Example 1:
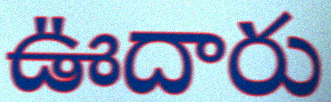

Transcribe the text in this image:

ఊదారు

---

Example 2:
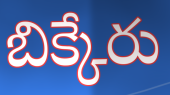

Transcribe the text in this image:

బిక్కేరు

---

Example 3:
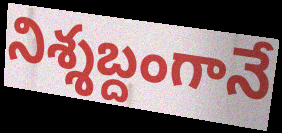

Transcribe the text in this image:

నిశ్శబ్దంగానే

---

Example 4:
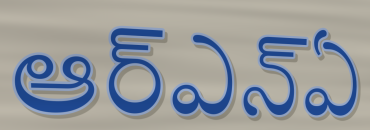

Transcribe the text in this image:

ఆర్ఎన్ఏ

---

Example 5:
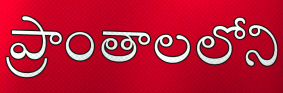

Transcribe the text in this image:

ప్రాంతాలలోని